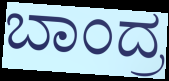
ಬಾಂದ್ರ